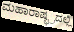
ಮಹಾರಾಷ್ಟ್ರದಲ್ಲಿ